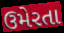
ઉમેરતા